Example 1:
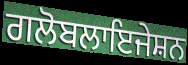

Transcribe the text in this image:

ਗਲੋਬਲਾਇਜੇਸ਼ਨ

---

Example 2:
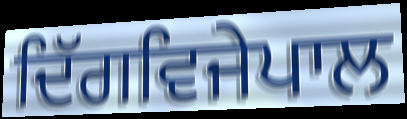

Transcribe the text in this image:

ਦਿੱਗਵਿਜੇਪਾਲ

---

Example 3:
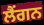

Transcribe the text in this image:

ਲੈਂਗਨ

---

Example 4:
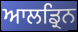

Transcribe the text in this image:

ਆਲਡ੍ਰਿਨ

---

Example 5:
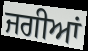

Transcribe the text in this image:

ਜਗੀਆਂ